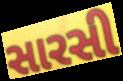
સારસી